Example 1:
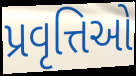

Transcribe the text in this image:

પ્રવૃત્તિઓ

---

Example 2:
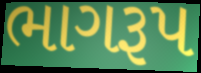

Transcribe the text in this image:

ભાગરૂપ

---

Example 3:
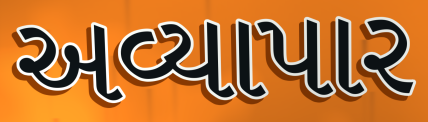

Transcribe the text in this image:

અવ્યાપાર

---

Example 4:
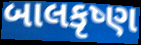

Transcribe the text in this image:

બાલકૃષ્ણ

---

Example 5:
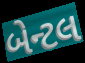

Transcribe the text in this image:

બેન્ટલ